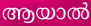
ആയാൽ